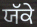
ਯੱਕੇ